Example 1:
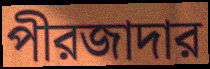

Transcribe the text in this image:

পীরজাদার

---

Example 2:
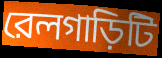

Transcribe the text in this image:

রেলগাড়িটি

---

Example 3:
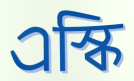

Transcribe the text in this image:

এস্কি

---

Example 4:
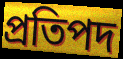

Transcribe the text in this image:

প্রতিপদ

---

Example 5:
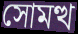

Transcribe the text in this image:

সোমত্থ